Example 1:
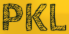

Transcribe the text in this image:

PKL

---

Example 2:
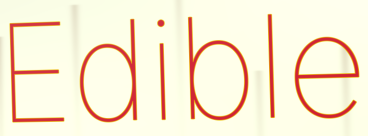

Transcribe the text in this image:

Edible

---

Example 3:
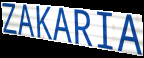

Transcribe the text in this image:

ZAKARIA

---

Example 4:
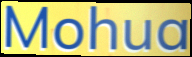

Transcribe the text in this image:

Mohua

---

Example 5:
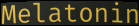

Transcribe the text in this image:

Melatonin